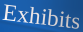
Exhibits